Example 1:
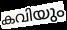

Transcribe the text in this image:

കവിയും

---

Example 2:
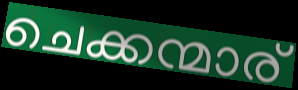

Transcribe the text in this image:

ചെക്കന്മാര്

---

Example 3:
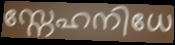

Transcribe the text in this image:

സ്നേഹനിധേ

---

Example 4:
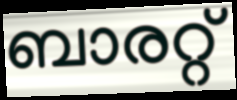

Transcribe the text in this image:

ബാരറ്റ്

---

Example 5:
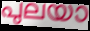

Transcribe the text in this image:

പുലയാ